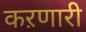
कऱणारी